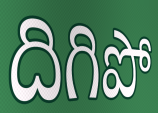
దిగిపో